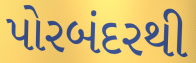
પોરબંદરથી